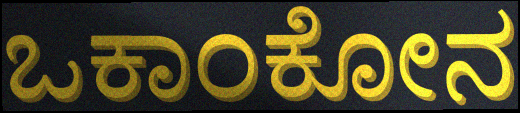
ಒಕಾಂಕೋನ